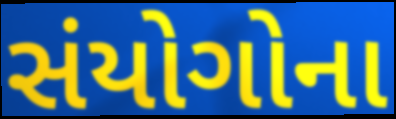
સંયોગોના